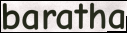
baratha